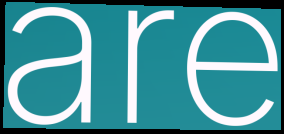
are